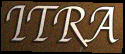
ITRA